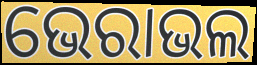
ଭେରାଭଲ